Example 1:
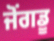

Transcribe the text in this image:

ਜੋਂਗਡੂ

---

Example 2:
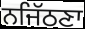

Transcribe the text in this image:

ਨਜਿੱਠਣਾ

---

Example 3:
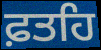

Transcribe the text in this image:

ਫ਼ਤਹਿ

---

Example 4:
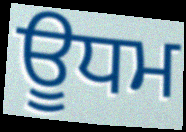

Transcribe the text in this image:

ਊਧਮ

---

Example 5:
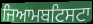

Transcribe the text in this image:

ਜਿਆਮਬਟਿਸਟਾ